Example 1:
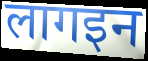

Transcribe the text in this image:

लागइन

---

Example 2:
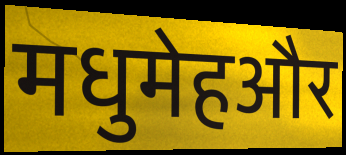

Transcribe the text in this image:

मधुमेहऔर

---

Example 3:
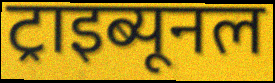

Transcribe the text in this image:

ट्राइब्यूनल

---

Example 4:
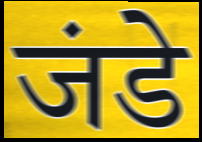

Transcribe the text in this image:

जंडे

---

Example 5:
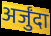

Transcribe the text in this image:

अर्जुंदा